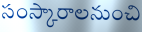
సంస్కారాలనుంచి